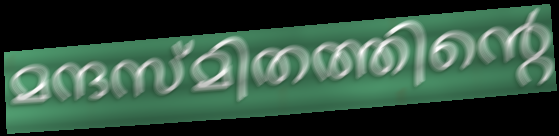
മന്ദസ്മിതത്തിന്റെ